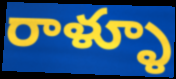
రాళ్ళూ